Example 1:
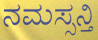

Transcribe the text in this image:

ನಮಸ್ಸನ್ತಿ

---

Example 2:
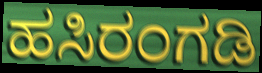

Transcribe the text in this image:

ಹಸಿರಂಗಡಿ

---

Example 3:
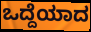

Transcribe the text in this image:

ಒದ್ದೆಯಾದ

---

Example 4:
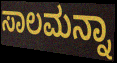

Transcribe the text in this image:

ಸಾಲಮನ್ನಾ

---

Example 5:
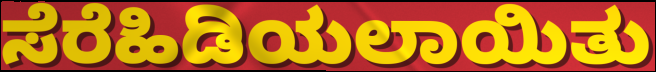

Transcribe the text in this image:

ಸೆರೆಹಿಡಿಯಲಾಯಿತು